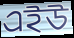
এইউ